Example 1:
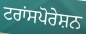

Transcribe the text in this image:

ਟਰਾਂਸਪੋਰੇਸ਼ਨ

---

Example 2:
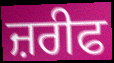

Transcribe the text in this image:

ਜ਼ਰੀਫ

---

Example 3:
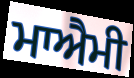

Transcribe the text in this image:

ਮਾਐਮੀ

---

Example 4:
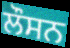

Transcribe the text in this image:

ਲੌਸਨ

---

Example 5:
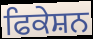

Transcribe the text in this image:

ਫਿਕੇਸ਼ਨ